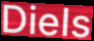
Diels